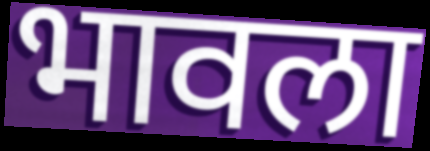
भावला